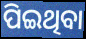
ପିଇଥିବା